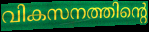
വികസനത്തിന്റെ